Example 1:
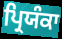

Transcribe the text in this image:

ਪ੍ਰਿਯੰਕਾ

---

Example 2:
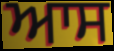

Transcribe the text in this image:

ਆਸ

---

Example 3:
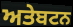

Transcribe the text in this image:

ਅਤੇਬਟਨ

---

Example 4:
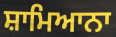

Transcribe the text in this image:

ਸ਼ਾਮਿਆਨਾ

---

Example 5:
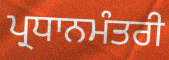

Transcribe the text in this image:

ਪ੍ਰਧਾਨਮੰਤਰੀ